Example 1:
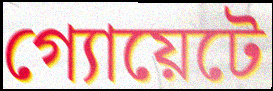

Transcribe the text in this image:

গ্যোয়েটে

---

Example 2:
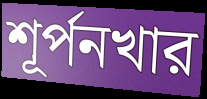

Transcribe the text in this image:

শূর্পনখার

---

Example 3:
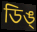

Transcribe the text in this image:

ডিঙ্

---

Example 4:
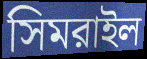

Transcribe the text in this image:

সিমরাইল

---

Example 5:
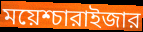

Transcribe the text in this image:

ময়েশ্চারাইজার